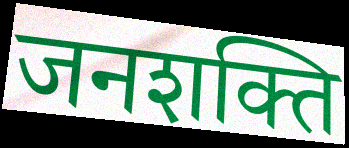
जनशक्ति